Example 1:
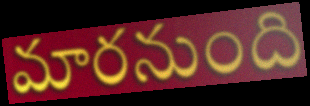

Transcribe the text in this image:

మారనుంది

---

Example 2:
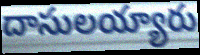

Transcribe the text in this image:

దాసులయ్యారు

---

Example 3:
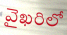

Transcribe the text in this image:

వైఖరిలో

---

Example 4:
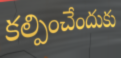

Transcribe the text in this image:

కల్పించేందుకు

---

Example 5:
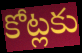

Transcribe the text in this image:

కోట్లకు